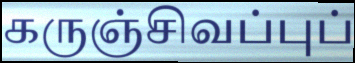
கருஞ்சிவப்புப்